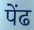
पेंढ